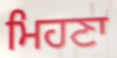
ਮਿਹਣਾ